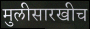
मुलीसारखीच